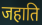
जहाति